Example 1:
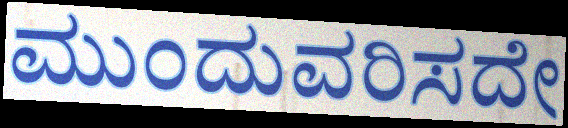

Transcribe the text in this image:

ಮುಂದುವರಿಸದೇ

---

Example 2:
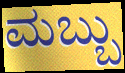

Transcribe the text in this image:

ಮಬ್ಬು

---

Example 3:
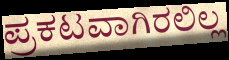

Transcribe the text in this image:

ಪ್ರಕಟವಾಗಿರಲಿಲ್ಲ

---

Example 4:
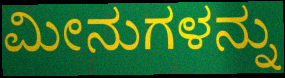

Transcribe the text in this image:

ಮೀನುಗಳನ್ನು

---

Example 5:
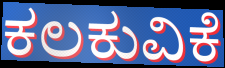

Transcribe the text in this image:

ಕಲಕುವಿಕೆ